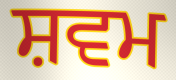
ਸ਼ਵਮ